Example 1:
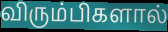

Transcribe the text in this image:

விரும்பிகளால்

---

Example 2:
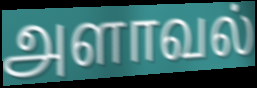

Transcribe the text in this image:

அளாவல்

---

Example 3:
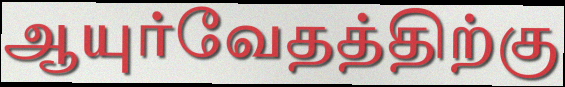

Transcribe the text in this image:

ஆயுர்வேதத்திற்கு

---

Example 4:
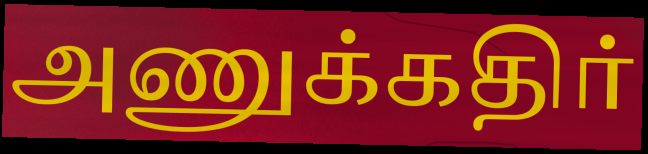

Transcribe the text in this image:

அணுக்கதிர்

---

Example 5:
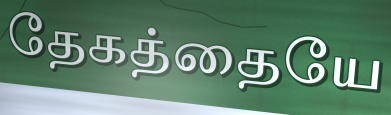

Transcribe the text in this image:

தேகத்தையே